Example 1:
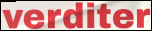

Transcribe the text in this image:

verditer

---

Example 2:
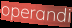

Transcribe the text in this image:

operandi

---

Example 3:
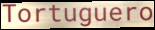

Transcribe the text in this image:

Tortuguero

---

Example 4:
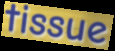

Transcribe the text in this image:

tissue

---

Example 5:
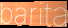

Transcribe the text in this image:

barita